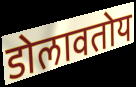
डोलावतोय